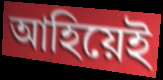
আহিয়েই